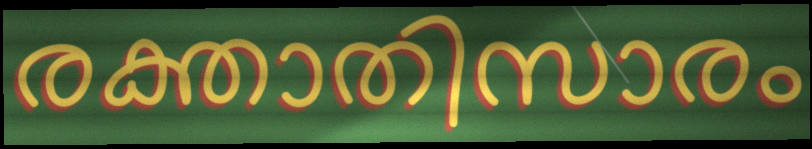
രക്താതിസാരം